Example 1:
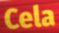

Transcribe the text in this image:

Cela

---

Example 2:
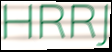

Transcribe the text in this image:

HRRJ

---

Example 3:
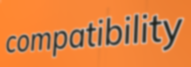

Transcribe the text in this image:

compatibility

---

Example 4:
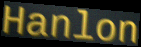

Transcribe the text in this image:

Hanlon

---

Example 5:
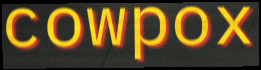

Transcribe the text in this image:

cowpox